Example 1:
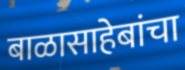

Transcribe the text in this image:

बाळासाहेबांचा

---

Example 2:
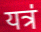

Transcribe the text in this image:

यत्र॑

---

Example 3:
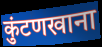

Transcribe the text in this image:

कुंटणखाना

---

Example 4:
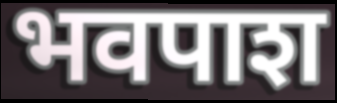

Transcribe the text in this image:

भवपाश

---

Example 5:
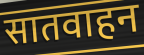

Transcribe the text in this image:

सातवाहन